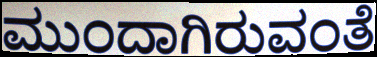
ಮುಂದಾಗಿರುವಂತೆ